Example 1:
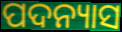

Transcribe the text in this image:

ପଦନ୍ୟାସ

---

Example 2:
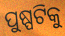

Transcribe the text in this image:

ପୁଷ୍ପଟିକୁ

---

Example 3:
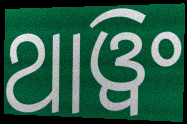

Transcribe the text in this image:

ଥାୱିଂ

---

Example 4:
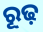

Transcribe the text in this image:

ରୂଢ଼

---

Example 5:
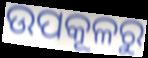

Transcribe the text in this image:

ଉପକୂଳରୁ